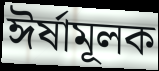
ঈর্ষামূলক